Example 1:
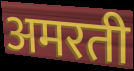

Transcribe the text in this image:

अमरती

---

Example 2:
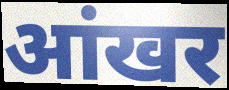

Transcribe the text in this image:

आंखर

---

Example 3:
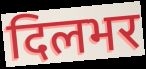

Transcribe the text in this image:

दिलभर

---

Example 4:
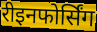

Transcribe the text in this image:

रीइनफोर्सिंग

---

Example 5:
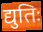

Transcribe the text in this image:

द्युतिः